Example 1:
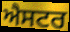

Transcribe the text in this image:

ਐਸਟਰ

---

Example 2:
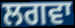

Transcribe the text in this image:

ਲਗਵਾ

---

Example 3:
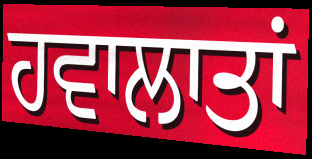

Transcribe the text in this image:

ਹਵਾਲਾਤਾਂ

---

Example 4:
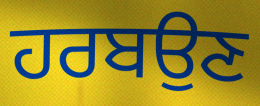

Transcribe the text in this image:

ਹਰਬਉਣ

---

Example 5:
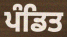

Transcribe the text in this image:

ਪੰਡਿਤ